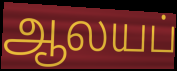
ஆலயப்